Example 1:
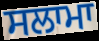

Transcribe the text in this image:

ਸਲਾਮਾ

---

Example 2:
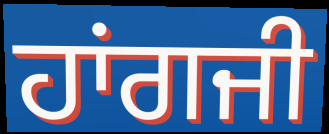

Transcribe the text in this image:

ਹਾਂਗਜੀ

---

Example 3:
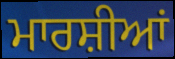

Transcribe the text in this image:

ਮਾਰਸ਼ੀਆਂ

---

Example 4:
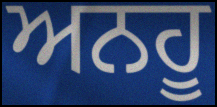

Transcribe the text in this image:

ਅਨਹੂ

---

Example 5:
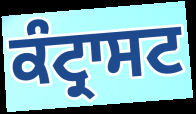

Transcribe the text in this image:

ਕੰਟ੍ਰਾਸਟ